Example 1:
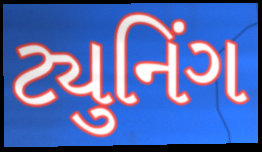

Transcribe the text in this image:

ટ્યુનિંગ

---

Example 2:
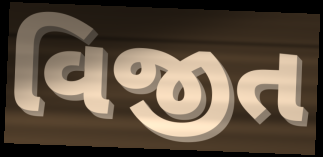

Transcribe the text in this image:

વિજીત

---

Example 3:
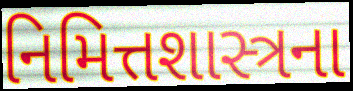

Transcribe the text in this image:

નિમિત્તશાસ્ત્રના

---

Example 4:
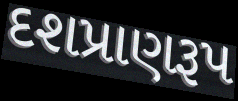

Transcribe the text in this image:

દશપ્રાણરૂપ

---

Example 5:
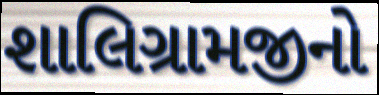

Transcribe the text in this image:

શાલિગ્રામજીનો